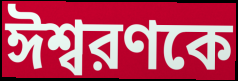
ঈশ্বরণকে